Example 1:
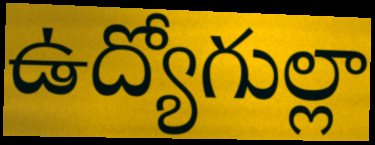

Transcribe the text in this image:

ఉద్యోగుల్లా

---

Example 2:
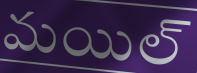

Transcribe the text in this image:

మయిల్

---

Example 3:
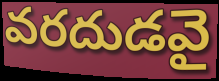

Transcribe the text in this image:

వరదుడవై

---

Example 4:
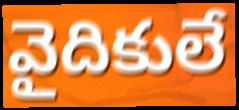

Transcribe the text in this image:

వైదికులే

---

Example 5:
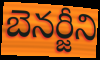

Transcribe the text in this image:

బెనర్జీని